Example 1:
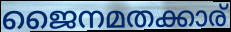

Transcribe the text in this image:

ജൈനമതക്കാര്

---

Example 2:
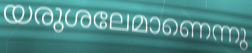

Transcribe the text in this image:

യരുശലേമാണെന്നു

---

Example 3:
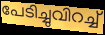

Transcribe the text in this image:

പേടിച്ചുവിറച്ച്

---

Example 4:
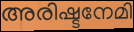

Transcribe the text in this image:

അരിഷ്ടനേമി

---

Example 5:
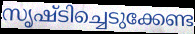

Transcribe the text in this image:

സൃഷ്ടിച്ചെടുക്കേണ്ട